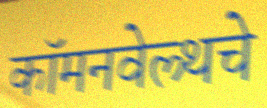
कॉमनवेल्थचे